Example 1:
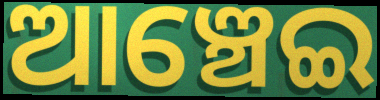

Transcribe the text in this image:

ଆଞ୍ଚେଇ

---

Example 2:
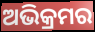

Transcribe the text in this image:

ଅଭିକ୍ରମର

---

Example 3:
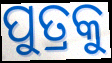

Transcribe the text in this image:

ପୁତ୍ରକୁ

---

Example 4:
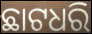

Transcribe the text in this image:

ଛାଟଧରି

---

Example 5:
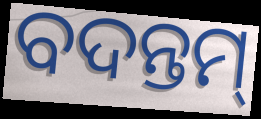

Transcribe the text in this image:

ବଦନ୍ତମ୍